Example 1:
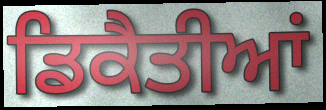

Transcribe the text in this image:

ਡਿਕੈਤੀਆਂ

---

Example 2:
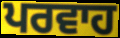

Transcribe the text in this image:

ਪਰਵਾਹ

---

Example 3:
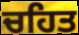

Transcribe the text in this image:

ਚਹਿਤ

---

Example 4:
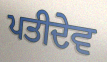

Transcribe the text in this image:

ਪਤੀਦੇਵ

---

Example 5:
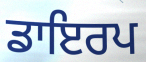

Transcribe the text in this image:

ਡਾਇਰਪ